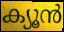
ക്യൂൻ